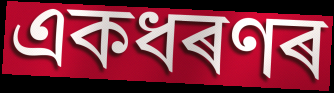
একধৰণৰ